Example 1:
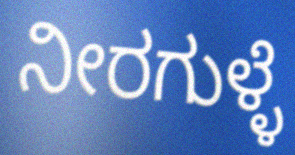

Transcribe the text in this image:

ನೀರಗುಳ್ಳೆ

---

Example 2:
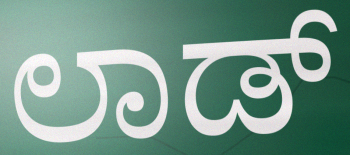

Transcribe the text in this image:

ಲಾಡ್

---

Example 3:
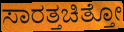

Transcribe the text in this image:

ಸಾರತ್ತಚಿತ್ತೋ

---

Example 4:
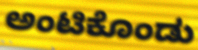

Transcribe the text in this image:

ಅಂಟಿಕೊಂಡು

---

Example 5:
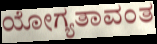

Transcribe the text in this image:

ಯೋಗ್ಯತಾವಂತ